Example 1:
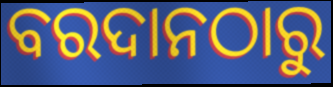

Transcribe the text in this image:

ବରଦାନଠାରୁ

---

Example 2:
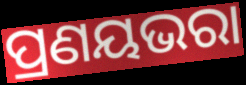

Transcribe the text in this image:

ପ୍ରଣୟଭରା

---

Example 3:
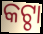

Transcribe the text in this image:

କଟ୍ଠା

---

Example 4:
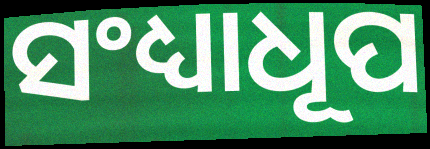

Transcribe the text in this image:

ସଂଧ୍ୟାଧୂପ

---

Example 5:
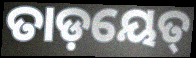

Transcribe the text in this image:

ତାଡ଼ୟେତ୍